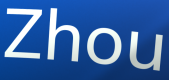
Zhou